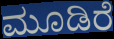
ಮೂಡಿರೆ